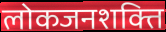
लोकजनशक्ति